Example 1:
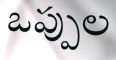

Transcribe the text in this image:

ఒప్పుల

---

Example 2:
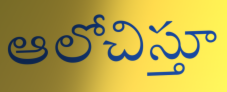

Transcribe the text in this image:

ఆలోచిస్తూ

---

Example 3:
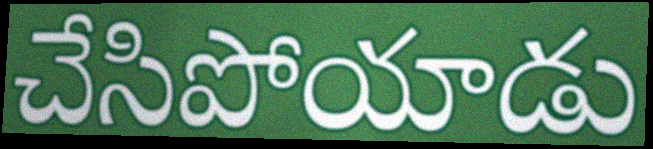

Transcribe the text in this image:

చేసిపోయాడు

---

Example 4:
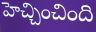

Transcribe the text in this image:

హెచ్చించింది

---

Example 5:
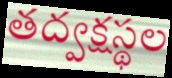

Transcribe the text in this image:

తద్వక్షస్థల